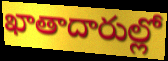
ఖాతాదారుల్లో